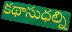
కథాసుధల్ని